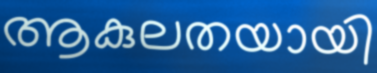
ആകുലതയായി